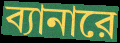
ব্যানারে